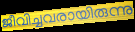
ജീവിച്ചവരായിരുന്നു